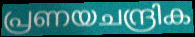
പ്രണയചന്ദ്രിക